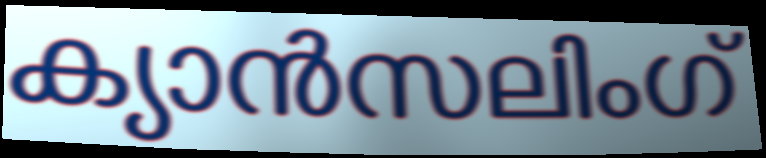
ക്യാൻസലിംഗ്